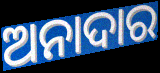
ଅନାଦାର